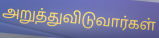
அறுத்துவிடுவார்கள்